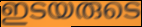
ഇടയരുടെ